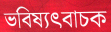
ভবিষ্যৎবাচক